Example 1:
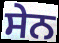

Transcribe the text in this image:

ਸੇਨ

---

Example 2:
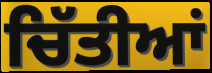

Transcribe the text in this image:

ਚਿੱਤੀਆਂ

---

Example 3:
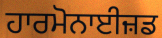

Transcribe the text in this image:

ਹਾਰਮੋਨਾਈਜ਼ਡ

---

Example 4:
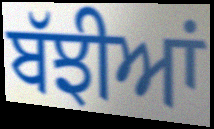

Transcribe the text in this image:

ਬੱਝੀਆਂ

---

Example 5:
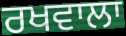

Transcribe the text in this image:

ਰਖਵਾਲਾ